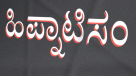
ಹಿಪ್ನಾಟಿಸಂ